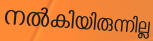
നൽകിയിരുന്നില്ല